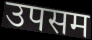
उपसम